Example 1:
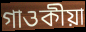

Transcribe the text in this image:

গাওকীয়া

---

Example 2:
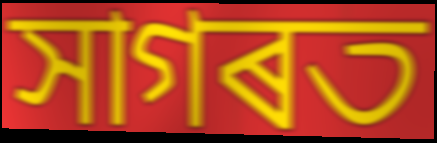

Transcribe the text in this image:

সাগৰত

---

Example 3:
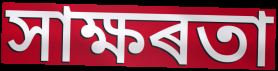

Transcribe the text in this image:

সাক্ষৰতা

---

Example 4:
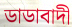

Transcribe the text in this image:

ডাডাবাদী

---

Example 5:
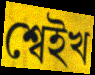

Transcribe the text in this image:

শ্বেইখ